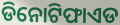
ଡିନୋଟିଫାଏଡ